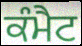
ਕੰਮੈਟ